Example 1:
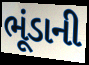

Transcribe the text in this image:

ભૂંડાની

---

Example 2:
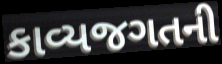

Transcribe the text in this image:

કાવ્યજગતની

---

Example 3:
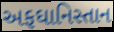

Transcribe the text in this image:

અફઘાનિસ્તાન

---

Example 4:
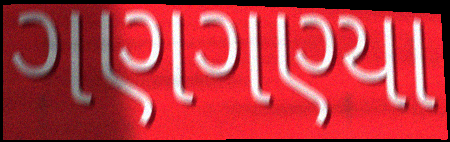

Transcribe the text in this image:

ગણગણ્યા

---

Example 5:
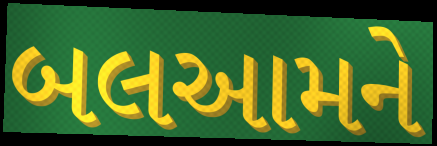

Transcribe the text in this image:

બલઆમને